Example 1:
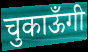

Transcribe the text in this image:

चुकाऊँगी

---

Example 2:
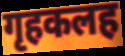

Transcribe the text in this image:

गृहकलह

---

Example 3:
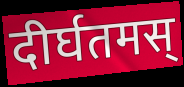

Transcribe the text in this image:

दीर्घतमस्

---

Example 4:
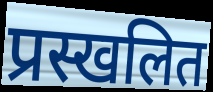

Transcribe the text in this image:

प्रस्खलित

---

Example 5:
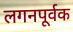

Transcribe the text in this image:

लगनपूर्वक